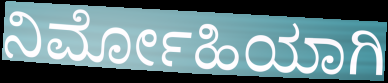
ನಿರ್ಮೋಹಿಯಾಗಿ